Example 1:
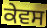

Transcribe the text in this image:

ਕੇਵਸ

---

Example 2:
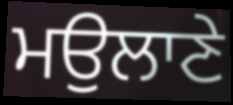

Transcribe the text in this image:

ਮਉਲਾਣੇ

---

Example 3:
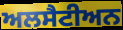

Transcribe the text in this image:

ਅਲਸੈਟੀਅਨ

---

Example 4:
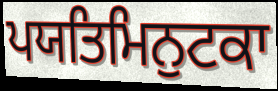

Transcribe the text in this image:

ਪਯਤਿਮਿਨੁਟਕਾ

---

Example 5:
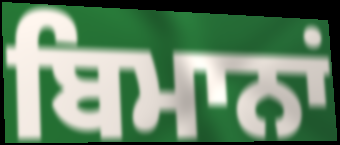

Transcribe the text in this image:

ਬਿਮਾਨਾਂ